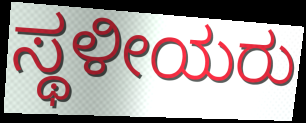
ಸ್ಥಳೀಯರು